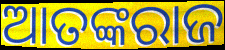
ଆତଙ୍କରାଜ